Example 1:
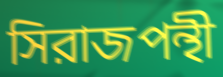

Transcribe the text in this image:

সিরাজপন্থী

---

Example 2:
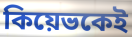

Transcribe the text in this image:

কিয়েভকেই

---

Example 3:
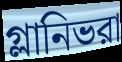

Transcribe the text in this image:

গ্লানিভরা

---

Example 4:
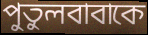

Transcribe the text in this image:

পুতুলবাবাকে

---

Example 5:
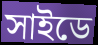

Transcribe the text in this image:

সাইডে